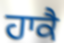
ਹਾਕੈ